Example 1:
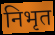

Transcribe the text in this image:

निभृत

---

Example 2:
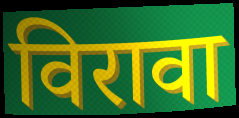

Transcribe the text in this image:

विरावा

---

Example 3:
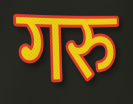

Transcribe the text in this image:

गरु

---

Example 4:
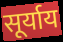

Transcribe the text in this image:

सूर्याय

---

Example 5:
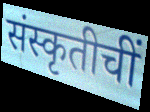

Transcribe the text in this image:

संस्कृतीचीं